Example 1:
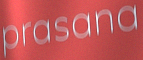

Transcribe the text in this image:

prasana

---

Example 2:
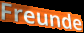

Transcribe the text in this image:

Freunde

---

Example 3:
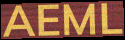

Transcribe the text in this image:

AEML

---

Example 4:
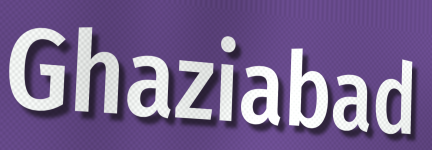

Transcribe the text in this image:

Ghaziabad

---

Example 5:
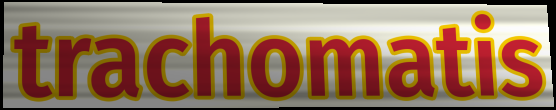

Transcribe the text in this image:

trachomatis